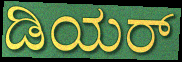
ಡಿಯರ್